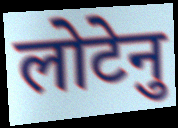
लोटेनु